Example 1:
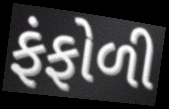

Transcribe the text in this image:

ફંફોળી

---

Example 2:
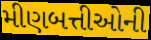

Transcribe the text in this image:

મીણબત્તીઓની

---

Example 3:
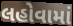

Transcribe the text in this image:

લહોવામાં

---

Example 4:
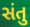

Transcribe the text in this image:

સંતુ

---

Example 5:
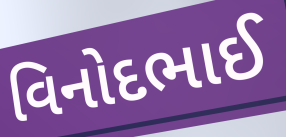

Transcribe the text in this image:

વિનોદભાઈ